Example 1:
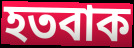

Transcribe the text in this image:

হতবাক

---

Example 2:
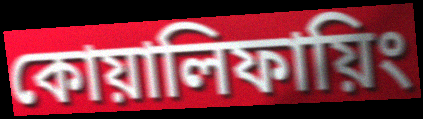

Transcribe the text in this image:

কোয়ালিফায়িং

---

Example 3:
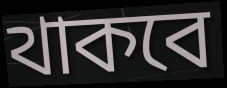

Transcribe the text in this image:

থাকবে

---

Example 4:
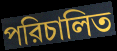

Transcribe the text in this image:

পরিচালিত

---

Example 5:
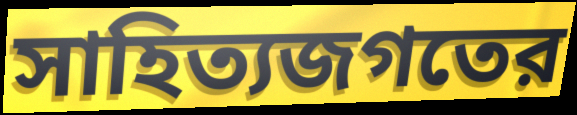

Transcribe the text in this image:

সাহিত্যজগতের